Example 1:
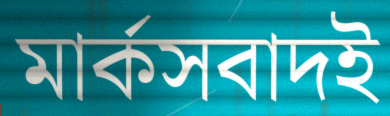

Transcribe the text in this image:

মার্কসবাদই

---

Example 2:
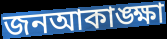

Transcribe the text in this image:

জনআকাঙ্ক্ষা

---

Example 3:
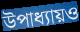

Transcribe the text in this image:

উপাধ্যায়ও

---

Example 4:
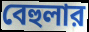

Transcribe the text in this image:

বেহুলার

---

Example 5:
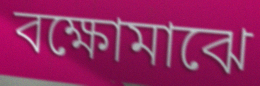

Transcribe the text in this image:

বক্ষোমাঝে